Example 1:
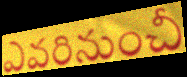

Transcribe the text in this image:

ఎవరినుంచీ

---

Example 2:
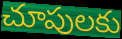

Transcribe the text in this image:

చూపులకు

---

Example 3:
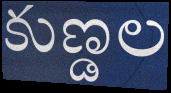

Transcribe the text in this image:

కుణ్డల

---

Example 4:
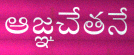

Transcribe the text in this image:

ఆజ్ఞచేతనే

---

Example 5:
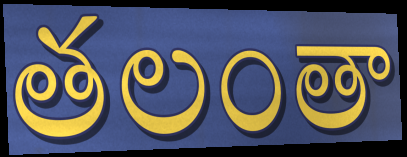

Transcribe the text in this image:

తలంతా